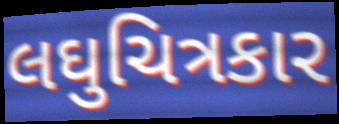
લઘુચિત્રકાર